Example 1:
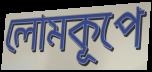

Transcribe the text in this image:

লোমকূপে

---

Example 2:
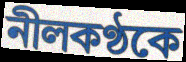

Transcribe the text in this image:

নীলকণ্ঠকে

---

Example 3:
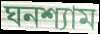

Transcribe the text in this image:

ঘনশ্যাম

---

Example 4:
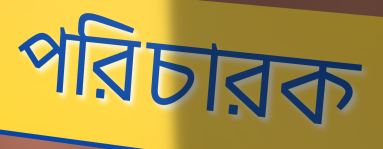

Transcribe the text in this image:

পরিচারক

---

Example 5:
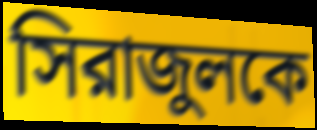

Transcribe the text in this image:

সিরাজুলকে